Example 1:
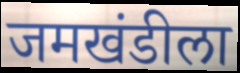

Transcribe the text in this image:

जमखंडीला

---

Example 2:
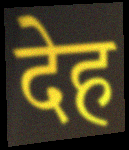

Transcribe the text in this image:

देह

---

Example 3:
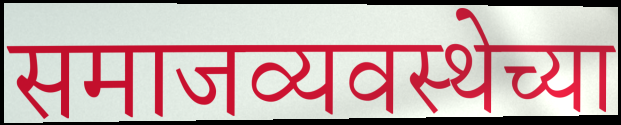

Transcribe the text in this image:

समाजव्यवस्थेच्या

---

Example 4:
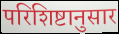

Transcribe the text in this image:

परिशिष्टानुसार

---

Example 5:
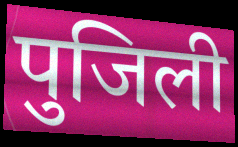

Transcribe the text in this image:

पुजिली